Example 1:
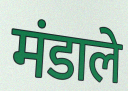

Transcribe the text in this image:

मंडाले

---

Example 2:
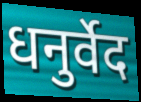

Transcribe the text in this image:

धनुर्वेद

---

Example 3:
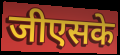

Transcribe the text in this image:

जीएसके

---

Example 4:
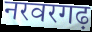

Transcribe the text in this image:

नरवरगढ़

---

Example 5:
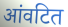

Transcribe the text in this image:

आंवटित